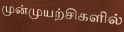
முன்முயற்சிகளில்